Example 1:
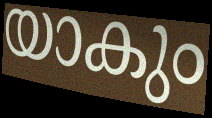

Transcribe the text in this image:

യാകും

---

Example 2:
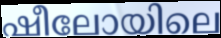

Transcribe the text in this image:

ഷീലോയിലെ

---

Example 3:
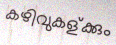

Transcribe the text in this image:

കഴിവുകള്ക്കും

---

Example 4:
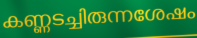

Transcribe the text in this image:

കണ്ണടച്ചിരുന്നശേഷം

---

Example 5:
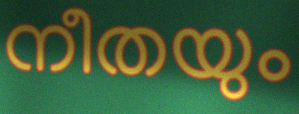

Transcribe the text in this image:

നീതയും